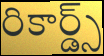
రికార్డ్స్